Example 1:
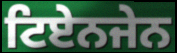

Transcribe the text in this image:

ਟਿਏਨਜੇਨ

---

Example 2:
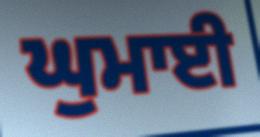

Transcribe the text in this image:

ਘੁਮਾਈ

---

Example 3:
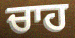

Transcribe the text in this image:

ਚਾਹ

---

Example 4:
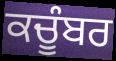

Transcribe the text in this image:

ਕਚੂੰਬਰ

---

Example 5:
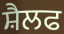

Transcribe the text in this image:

ਸ਼ੈਲਫ